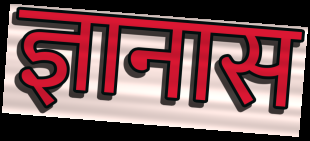
ज्ञानास